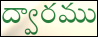
ద్వారము